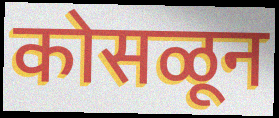
कोसळून